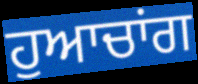
ਹੁਆਚਾਂਗ